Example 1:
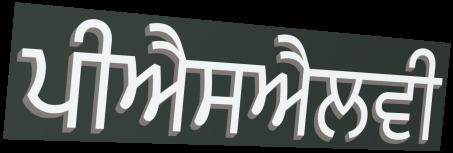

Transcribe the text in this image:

ਪੀਐਸਐਲਵੀ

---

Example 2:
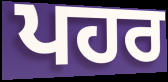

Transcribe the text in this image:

ਪਹਰ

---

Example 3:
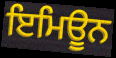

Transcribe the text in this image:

ਇਮਿਊਨ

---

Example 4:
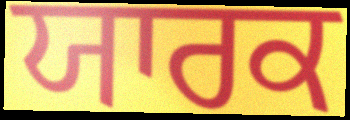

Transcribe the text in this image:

ਯਾਰਕ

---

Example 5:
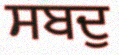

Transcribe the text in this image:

ਸਬਦੁ